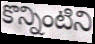
కొన్నింటిని